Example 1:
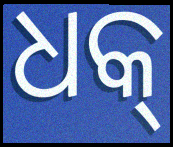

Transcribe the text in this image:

ଧକ୍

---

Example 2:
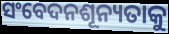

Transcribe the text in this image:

ସଂବେଦନଶୂନ୍ୟତାକୁ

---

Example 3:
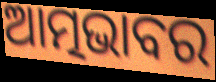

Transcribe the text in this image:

ଆତ୍ମଭାବର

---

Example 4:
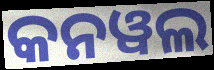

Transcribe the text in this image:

କନୱଲ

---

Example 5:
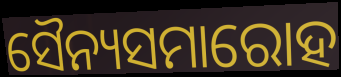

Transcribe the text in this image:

ସୈନ୍ୟସମାରୋହ